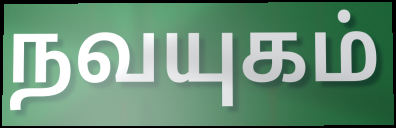
நவயுகம்